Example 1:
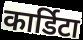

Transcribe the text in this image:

कार्डिटा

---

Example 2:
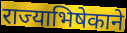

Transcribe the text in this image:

राज्याभिषेकाने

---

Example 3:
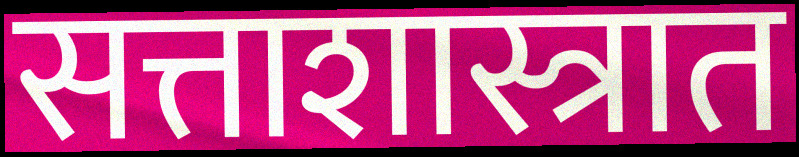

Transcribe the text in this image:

सत्ताशास्त्रात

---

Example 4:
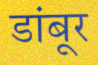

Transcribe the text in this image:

डांबूर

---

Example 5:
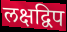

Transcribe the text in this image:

लक्षद्विप